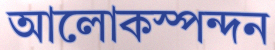
আলোকস্পন্দন